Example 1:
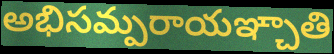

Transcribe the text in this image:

అభిసమ్పరాయఞ్చాతి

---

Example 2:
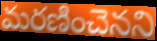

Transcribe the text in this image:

మరణించెనని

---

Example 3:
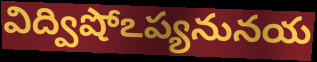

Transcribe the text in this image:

విద్విషోఽప్యనునయ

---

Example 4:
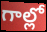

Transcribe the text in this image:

గాల్లో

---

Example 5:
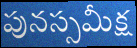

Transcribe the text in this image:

పునస్సమీక్ష